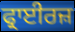
ਫ੍ਰਾਈਰਜ਼